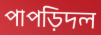
পাপড়িদল